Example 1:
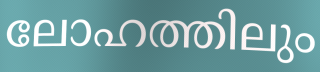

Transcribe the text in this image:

ലോഹത്തിലും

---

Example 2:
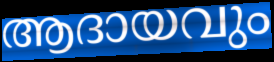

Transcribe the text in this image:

ആദായവും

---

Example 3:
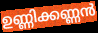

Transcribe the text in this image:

ഉണ്ണിക്കണ്ണൻ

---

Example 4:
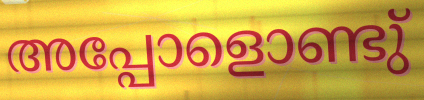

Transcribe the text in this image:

അപ്പോളൊണ്ടു്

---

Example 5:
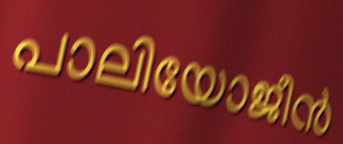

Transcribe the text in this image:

പാലിയോജീൻ